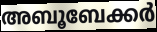
അബൂബേക്കർ